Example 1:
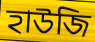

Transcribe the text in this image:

হাউজি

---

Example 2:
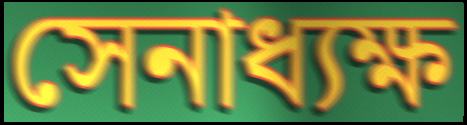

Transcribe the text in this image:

সেনাধ্যক্ষ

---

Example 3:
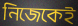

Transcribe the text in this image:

নিজেকেই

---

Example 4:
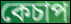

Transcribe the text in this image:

কেচাপ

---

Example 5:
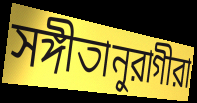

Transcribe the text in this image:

সঙ্গীতানুরাগীরা